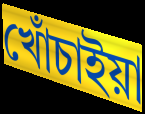
খোঁচাইয়া